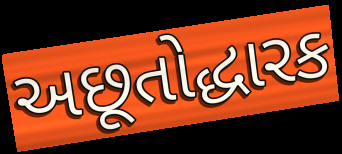
અછૂતોદ્ધારક